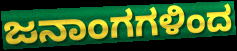
ಜನಾಂಗಗಳಿಂದ